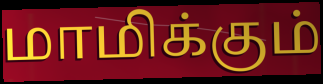
மாமிக்கும்